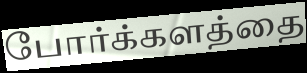
போர்க்களத்தை